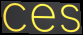
ces